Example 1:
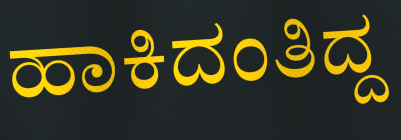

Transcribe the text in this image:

ಹಾಕಿದಂತಿದ್ದ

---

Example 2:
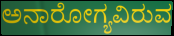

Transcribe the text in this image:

ಅನಾರೋಗ್ಯವಿರುವ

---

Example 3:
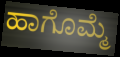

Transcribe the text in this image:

ಹಾಗೊಮ್ಮೆ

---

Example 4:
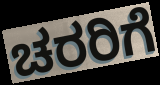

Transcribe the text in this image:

ಚರರಿಗೆ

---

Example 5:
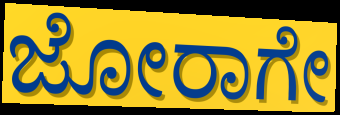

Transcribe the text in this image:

ಜೋರಾಗೇ